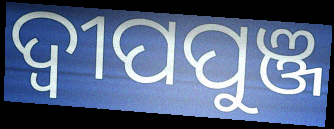
ଦ୍ଵୀପପୁଞ୍ଜ